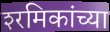
श्रमिकांच्या